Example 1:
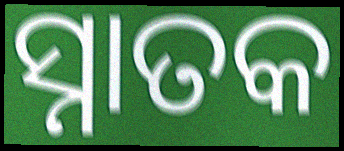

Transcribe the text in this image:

ସ୍ନାତକ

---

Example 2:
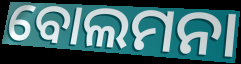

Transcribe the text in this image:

ବୋଲମନା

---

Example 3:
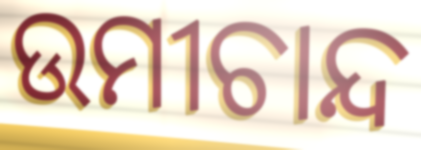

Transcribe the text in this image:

ଉମୀଚାନ୍ଦ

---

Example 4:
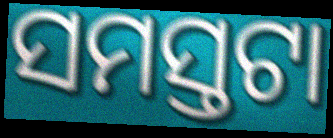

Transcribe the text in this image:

ସମସ୍ତଟା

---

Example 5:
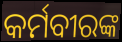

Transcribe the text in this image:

କର୍ମବୀରଙ୍କ